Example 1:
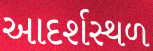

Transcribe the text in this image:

આદર્શસ્થળ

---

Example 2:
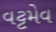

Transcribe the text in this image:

વટ્ટમેવ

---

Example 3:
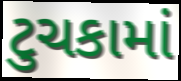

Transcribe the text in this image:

ટુચકામાં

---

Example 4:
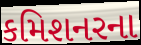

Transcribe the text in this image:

કમિશનરના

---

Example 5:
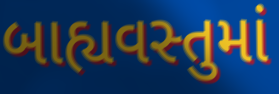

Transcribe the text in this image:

બાહ્યવસ્તુમાં